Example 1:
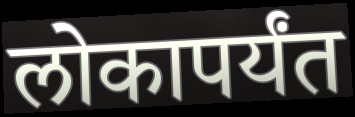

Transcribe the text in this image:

लोकापर्यंत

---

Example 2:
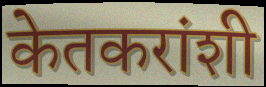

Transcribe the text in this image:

केतकरांशी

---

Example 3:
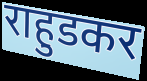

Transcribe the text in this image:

राहुडकर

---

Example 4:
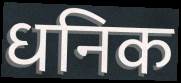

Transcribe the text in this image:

धनिक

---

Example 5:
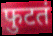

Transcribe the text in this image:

फुटतं